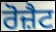
ਰੋਜ਼ੈਟ